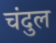
चंदुल